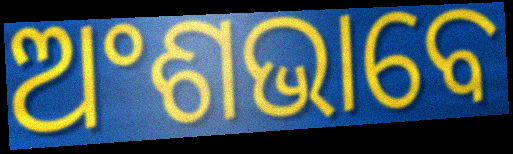
ଅଂଶଭାବେ